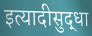
इत्यादीसुद्धा